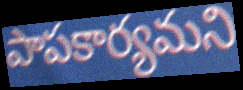
పాపకార్యమని